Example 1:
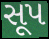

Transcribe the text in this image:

સૂપ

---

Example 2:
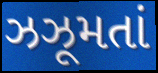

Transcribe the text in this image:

ઝઝૂમતાં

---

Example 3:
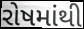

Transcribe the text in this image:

રોષમાંથી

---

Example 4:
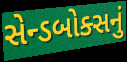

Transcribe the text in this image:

સેન્ડબોક્સનું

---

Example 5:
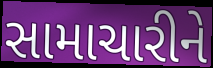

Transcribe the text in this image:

સામાચારીને